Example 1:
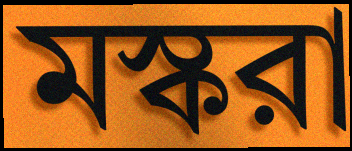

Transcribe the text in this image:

মস্করা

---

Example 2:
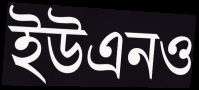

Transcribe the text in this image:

ইউএনও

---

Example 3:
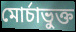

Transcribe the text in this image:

মোর্চাভুক্ত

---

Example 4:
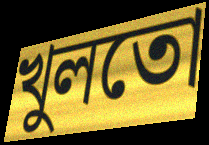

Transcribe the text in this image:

খুলতো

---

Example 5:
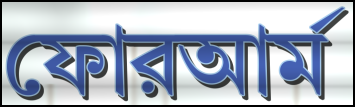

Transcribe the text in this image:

ফোরআর্ম